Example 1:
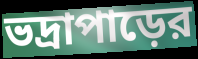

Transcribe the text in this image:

ভদ্রাপাড়ের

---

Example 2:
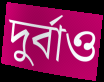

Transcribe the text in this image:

দুর্বাও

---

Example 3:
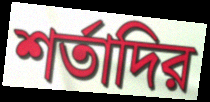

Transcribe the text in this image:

শর্তাদির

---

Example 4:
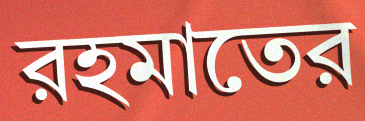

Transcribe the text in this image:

রহমাতের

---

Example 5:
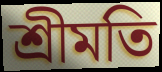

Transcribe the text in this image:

শ্রীমতি